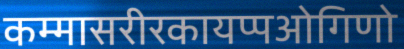
कम्मासरीरकायप्पओगिणो